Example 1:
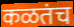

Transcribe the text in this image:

कळतंच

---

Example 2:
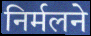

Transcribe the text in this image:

निर्मलने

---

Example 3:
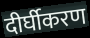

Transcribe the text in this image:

दीर्घीकरण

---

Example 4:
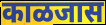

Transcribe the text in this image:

काळजास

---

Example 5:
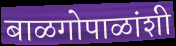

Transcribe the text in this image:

बाळगोपाळांशी